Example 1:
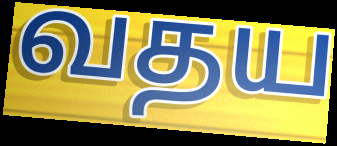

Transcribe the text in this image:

வதய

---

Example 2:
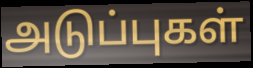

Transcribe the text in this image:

அடுப்புகள்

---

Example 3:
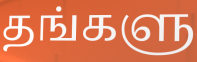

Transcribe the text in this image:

தங்களு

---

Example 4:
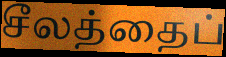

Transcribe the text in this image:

சீலத்தைப்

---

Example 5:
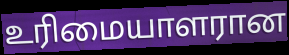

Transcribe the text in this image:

உரிமையாளரான